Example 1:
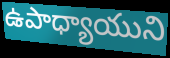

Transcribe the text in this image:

ఉపాధ్యాయుని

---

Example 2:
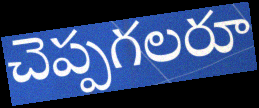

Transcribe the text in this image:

చెప్పగలరూ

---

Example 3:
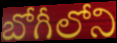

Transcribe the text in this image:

బోగీలోని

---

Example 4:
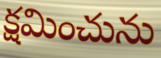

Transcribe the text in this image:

క్షమించును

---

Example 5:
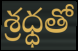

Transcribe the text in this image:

శ్రధ్ధతో